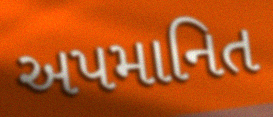
અપમાનિત